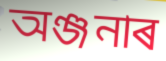
অঞ্জনাৰ